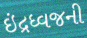
ઇંદ્રધ્વજની